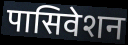
पासिवेशन